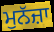
ਮੁਨੱਜ਼ਾ